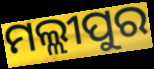
ମଲ୍ଲୀପୁର